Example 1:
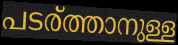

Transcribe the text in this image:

പടര്ത്താനുള്ള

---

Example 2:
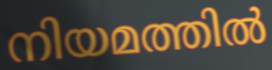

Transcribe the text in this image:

നിയമത്തിൽ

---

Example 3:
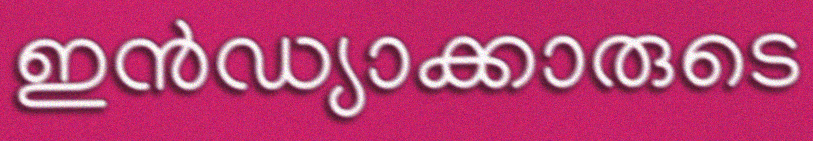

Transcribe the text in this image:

ഇൻഡ്യാക്കാരുടെ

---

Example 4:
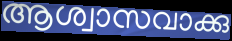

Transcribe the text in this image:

ആശ്വാസവാക്കു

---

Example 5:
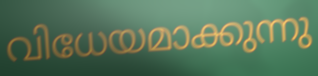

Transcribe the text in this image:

വിധേയമാക്കുന്നു